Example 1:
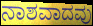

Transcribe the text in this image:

ನಾಶವಾದವು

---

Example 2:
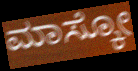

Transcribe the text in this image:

ಮಾಸ್ಕೋ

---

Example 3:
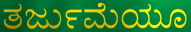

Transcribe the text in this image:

ತರ್ಜುಮೆಯೂ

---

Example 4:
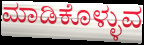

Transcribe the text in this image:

ಮಾಡಿಕೊಳ್ಳುವ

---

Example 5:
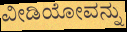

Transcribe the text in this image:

ವೀಡಿಯೋವನ್ನು